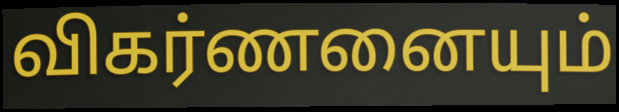
விகர்ணனையும்